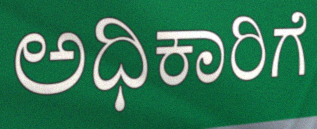
ಅಧಿಕಾರಿಗೆ